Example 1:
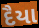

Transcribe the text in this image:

દૈયા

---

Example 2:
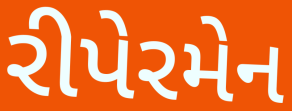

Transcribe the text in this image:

રીપેરમેન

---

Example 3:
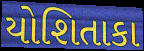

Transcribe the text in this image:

યોશિતાકા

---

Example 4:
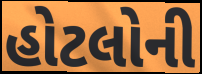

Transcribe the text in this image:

હોટલોની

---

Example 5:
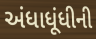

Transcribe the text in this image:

અંધાધૂંધીની